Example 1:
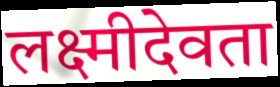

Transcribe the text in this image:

लक्ष्मीदेवता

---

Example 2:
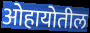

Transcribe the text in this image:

ओहायोतील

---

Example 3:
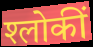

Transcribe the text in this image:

श्लोकीं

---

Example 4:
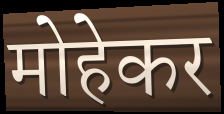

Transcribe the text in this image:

मोहेकर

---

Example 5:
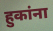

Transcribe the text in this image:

हुकांना